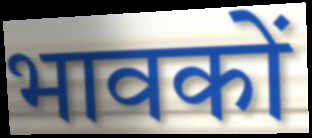
भावकों